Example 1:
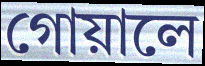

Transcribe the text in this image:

গোয়ালে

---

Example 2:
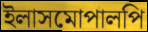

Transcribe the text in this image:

ইলাসমোপালপি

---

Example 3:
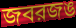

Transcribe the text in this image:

জবরজঙ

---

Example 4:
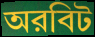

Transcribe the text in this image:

অরবিট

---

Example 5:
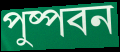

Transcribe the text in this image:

পুষ্পবন